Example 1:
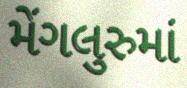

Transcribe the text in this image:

મેંગલુરુમાં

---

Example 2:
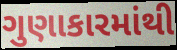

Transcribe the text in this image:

ગુણાકારમાંથી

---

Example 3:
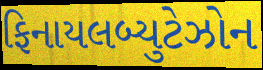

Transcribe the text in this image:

ફિનાયલબ્યુટેઝોન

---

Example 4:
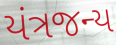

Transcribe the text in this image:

યંત્રજન્ય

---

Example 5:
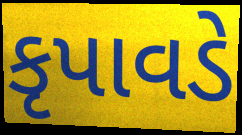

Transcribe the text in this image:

કૃપાવડે